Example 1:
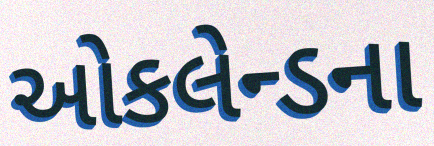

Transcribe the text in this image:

ઓકલેન્ડના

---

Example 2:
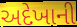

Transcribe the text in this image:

અદેખાની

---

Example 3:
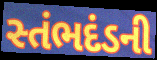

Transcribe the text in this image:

સ્તંભદંડની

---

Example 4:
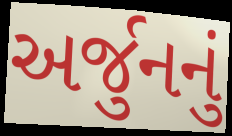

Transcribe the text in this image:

અર્જુનનું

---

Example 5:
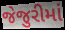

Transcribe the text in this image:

જેજુરીમાં